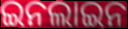
ଇନଲାଇନ